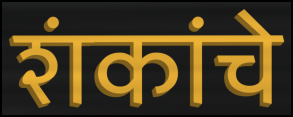
शंकांचे